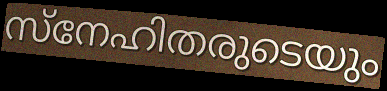
സ്നേഹിതരുടെയും